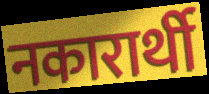
नकारार्थी